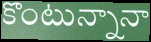
కొంటున్నానా